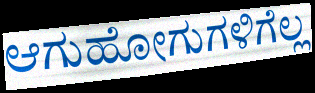
ಆಗುಹೋಗುಗಳಿಗೆಲ್ಲ